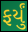
ફર્યું